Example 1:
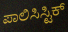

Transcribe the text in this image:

ಪಾಲಿಸಿಸ್ಟಿಕ್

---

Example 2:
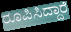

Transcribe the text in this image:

ರೂಪಿಸಿದ್ದಾರೆ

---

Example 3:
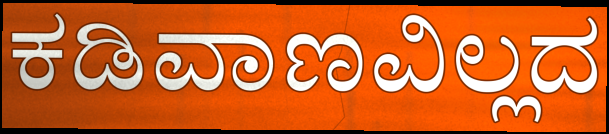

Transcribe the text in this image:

ಕಡಿವಾಣವಿಲ್ಲದ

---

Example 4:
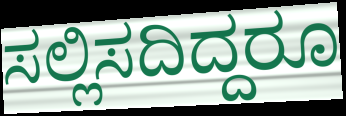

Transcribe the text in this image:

ಸಲ್ಲಿಸದಿದ್ದರೂ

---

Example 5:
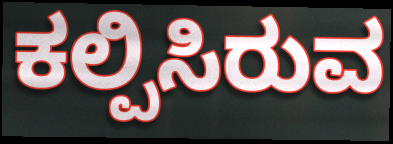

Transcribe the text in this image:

ಕಲ್ಪಿಸಿರುವ